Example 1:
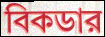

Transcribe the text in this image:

বিকডার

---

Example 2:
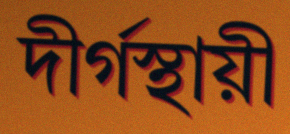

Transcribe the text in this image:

দীর্গস্থায়ী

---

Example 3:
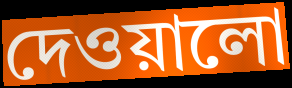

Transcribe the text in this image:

দেওয়ালো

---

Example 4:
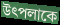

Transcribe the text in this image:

উৎপলাকে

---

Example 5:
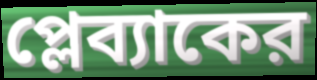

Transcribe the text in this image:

প্লেব্যাকের